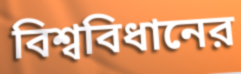
বিশ্ববিধানের